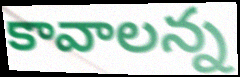
కావాలన్న